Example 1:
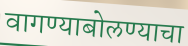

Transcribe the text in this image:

वागण्याबोलण्याचा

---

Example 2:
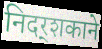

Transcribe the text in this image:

निदर्शकाने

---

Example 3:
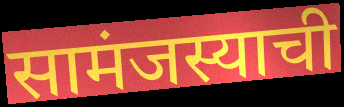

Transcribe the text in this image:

सामंजस्याची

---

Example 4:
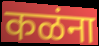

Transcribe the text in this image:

कळंना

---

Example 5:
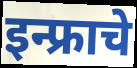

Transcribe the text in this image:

इन्फ्राचे